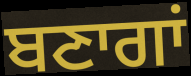
ਬਣਾਗਾਂ